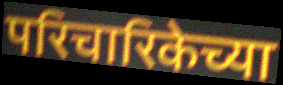
परिचारिकेच्या